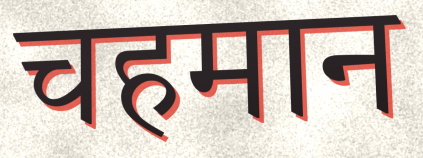
चहमान